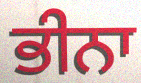
ਭੀਨਾ